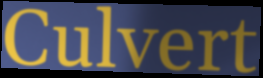
Culvert